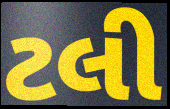
ટલી